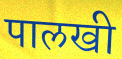
पालखी